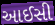
આઈસી